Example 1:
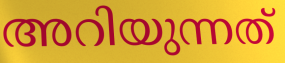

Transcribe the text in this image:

അറിയുന്നത്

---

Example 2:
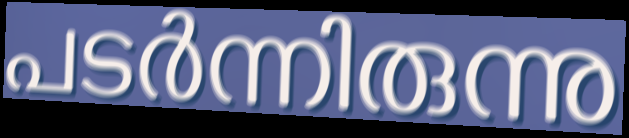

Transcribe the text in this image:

പടർന്നിരുന്നു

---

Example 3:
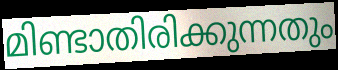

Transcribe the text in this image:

മിണ്ടാതിരിക്കുന്നതും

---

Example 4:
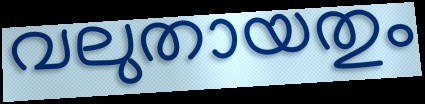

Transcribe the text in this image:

വലുതായതും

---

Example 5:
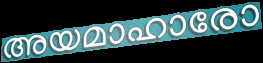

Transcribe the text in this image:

അയമാഹാരോ